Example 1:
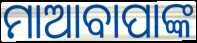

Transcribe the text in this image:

ମାଆବାପାଙ୍କ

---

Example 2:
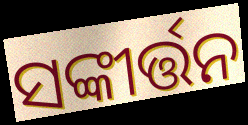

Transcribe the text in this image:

ସଙ୍କୀର୍ତ୍ତନ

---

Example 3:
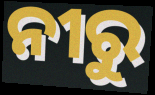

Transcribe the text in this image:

ନୀରୁ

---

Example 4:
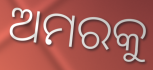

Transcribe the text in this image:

ଅମରକୁ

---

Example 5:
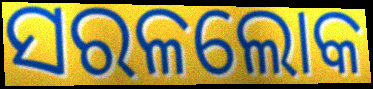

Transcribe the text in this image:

ସରଳଲୋକ